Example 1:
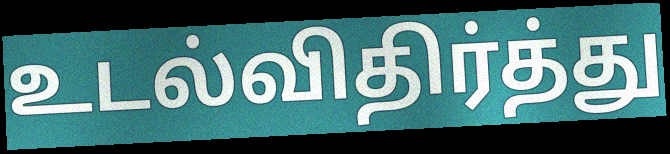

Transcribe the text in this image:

உடல்விதிர்த்து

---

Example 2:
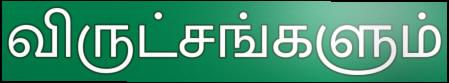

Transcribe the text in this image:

விருட்சங்களும்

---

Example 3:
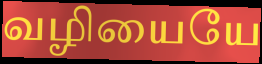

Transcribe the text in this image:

வழியையே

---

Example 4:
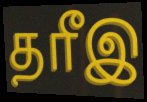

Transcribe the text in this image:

தரீஇ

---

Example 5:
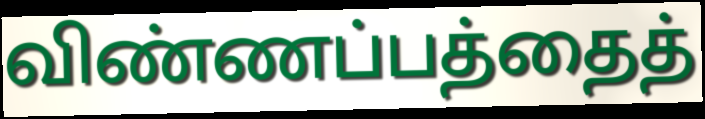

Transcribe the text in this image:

விண்ணப்பத்தைத்